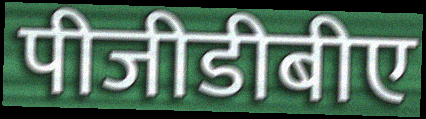
पीजीडीबीए